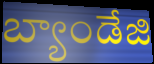
బ్యాండేజి